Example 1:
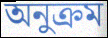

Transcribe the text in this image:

অনুক্রম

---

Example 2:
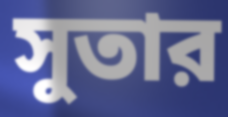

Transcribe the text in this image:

সুতার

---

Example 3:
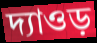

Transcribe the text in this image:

দ্যাওড়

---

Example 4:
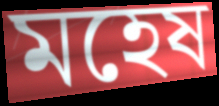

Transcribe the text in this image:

মহেষ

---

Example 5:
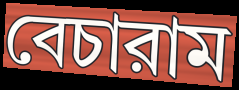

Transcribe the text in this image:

বেচারাম